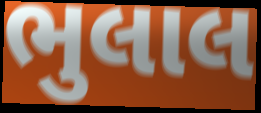
ભુલાલ